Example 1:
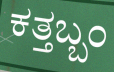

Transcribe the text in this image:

ಕತ್ತಬ್ಬಂ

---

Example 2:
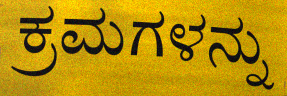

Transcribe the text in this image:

ಕ್ರಮಗಳನ್ನು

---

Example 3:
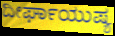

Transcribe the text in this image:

ದೀರ್ಘಾಯುಷ್ಯ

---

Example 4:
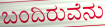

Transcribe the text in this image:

ಬಂದಿರುವೆನು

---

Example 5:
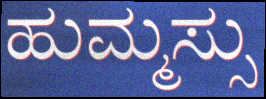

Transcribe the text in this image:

ಹುಮ್ಮಸ್ಸು